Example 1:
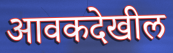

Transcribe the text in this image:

आवकदेखील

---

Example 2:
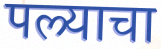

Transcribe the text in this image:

पल्याचा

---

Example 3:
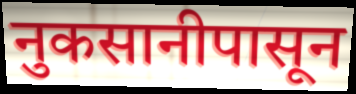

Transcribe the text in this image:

नुकसानीपासून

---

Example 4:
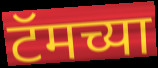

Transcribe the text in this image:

टॅमच्या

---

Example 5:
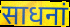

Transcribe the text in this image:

साधनां